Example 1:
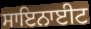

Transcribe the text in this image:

ਸਾਇਨਾਈਟ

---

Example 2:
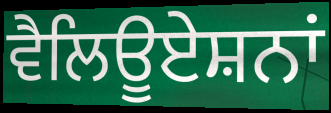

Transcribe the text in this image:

ਵੈਲਿਊਏਸ਼ਨਾਂ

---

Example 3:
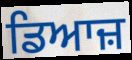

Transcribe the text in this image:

ਡਿਆਜ਼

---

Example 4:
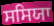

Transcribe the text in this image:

ਸਸਿਯਾ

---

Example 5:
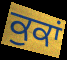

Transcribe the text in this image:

ਕੁਕਾਂ